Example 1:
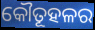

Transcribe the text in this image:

କୌତୂହଳର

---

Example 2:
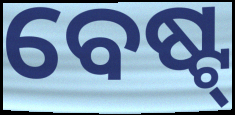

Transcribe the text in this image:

ବେଷ୍ଟ୍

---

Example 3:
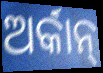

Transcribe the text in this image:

ଅର୍କାନ୍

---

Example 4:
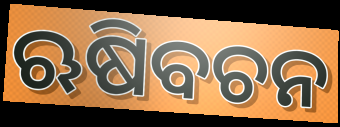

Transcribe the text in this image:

ଋଷିବଚନ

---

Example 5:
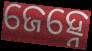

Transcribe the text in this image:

ଜେହ୍ନେ